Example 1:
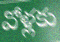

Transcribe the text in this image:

వోళ్లకు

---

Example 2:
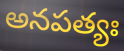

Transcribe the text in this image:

అనపత్యః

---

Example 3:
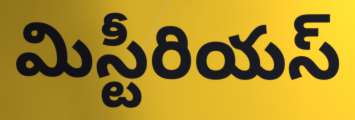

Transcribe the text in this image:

మిస్టీరియస్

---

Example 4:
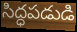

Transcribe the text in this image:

సిద్ధపడుడి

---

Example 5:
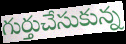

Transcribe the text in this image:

గుర్తుచేసుకున్న